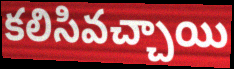
కలిసివచ్చాయి